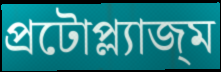
প্রটোপ্ল্যাজ্ম